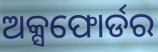
ଅକ୍ସଫୋର୍ଡର